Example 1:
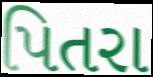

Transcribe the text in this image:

પિતરા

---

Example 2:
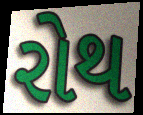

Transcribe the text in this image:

રોથ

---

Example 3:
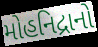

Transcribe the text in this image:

મોહનિદ્રાનો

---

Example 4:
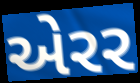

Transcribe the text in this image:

એરર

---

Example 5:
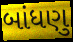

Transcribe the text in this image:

બાંધણુ